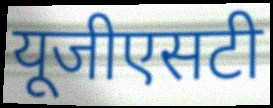
यूजीएसटी